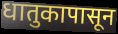
धातुकापासून